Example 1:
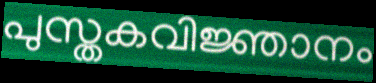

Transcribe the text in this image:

പുസ്തകവിജ്ഞാനം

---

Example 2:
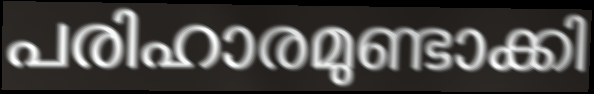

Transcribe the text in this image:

പരിഹാരമുണ്ടാക്കി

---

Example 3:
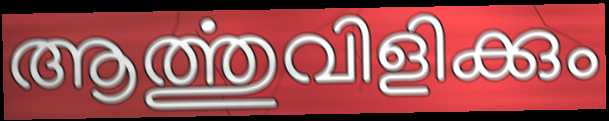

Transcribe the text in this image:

ആൎത്തുവിളിക്കും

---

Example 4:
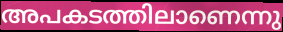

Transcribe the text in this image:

അപകടത്തിലാണെന്നു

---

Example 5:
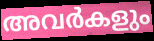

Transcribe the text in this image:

അവർകളും